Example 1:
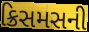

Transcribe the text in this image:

ક્રિસમસની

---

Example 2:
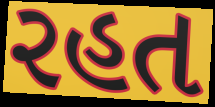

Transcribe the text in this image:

રહત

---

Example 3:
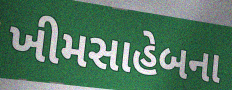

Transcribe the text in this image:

ખીમસાહેબના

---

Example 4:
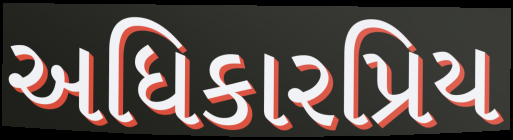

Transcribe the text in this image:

અધિકારપ્રિય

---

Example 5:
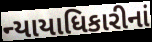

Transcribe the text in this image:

ન્યાયાધિકારીનાં